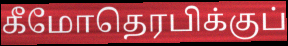
கீமோதெரபிக்குப்